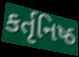
કર્તૃનિષ્ઠ